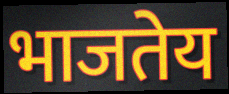
भाजतेय